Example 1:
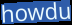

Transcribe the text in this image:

howdu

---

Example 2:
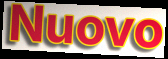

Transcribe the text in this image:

Nuovo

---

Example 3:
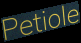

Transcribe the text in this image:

Petiole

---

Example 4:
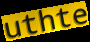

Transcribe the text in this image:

uthte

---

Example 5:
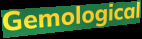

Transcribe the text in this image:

Gemological